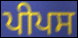
ਪੀਪਸ